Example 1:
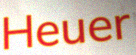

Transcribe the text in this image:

Heuer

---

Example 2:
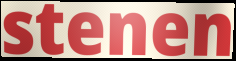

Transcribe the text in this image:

stenen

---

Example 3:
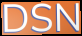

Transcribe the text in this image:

DSN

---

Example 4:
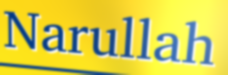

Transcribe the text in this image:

Narullah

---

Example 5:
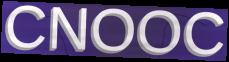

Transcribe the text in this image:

CNOOC